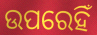
ଉପରେହିଁ